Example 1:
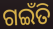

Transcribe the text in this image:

ଗଇଁତି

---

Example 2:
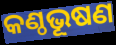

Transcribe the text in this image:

କଣ୍ଠଭୂଷଣ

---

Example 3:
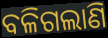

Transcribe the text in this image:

ବଳିଗଲାଣି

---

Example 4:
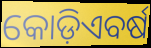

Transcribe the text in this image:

କୋଡ଼ିଏବର୍ଷ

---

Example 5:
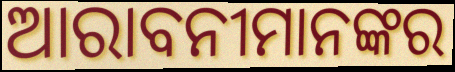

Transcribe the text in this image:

ଆରାବନୀମାନଙ୍କର